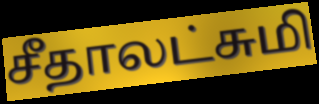
சீதாலட்சுமி